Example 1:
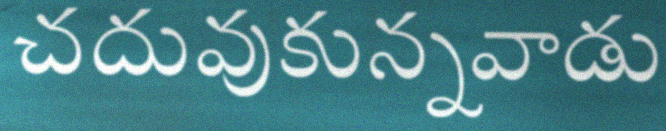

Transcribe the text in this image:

చదువుకున్నవాడు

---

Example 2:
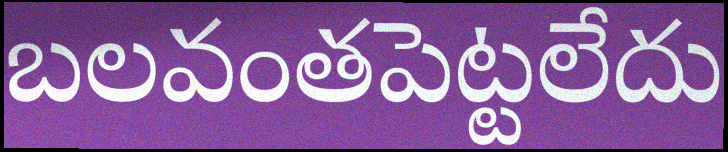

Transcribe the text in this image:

బలవంతపెట్టలేదు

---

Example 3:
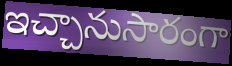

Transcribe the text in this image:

ఇచ్చానుసారంగా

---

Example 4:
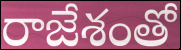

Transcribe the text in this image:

రాజేశంతో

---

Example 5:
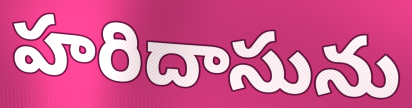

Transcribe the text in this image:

హరిదాసును